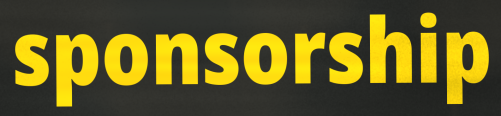
sponsorship